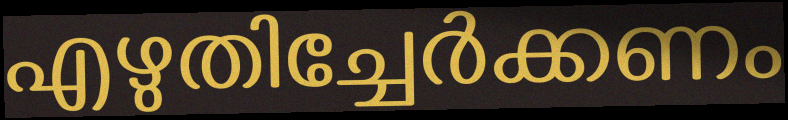
എഴുതിച്ചേർക്കണം